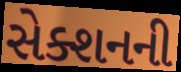
સેક્શનની